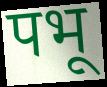
पभू